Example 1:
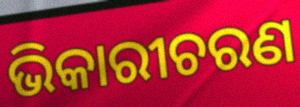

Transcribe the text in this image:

ଭିକାରୀଚରଣ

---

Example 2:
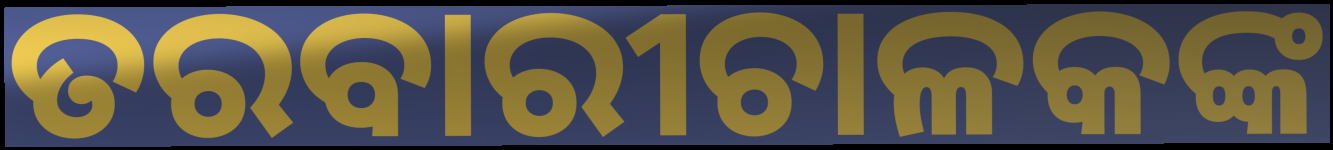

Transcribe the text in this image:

ତରବାରୀଚାଳକଙ୍କ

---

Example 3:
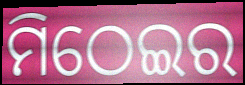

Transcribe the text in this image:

ମିଠେଇର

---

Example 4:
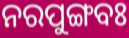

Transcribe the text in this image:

ନରପୁଙ୍ଗବଃ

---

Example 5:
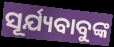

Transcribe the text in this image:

ସୂର୍ଯ୍ୟବାବୁଙ୍କ